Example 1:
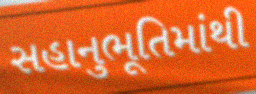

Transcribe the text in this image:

સહાનુભૂતિમાંથી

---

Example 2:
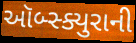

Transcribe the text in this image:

ઑબ્સ્ક્યુરાની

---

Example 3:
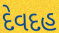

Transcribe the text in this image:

દેવદહ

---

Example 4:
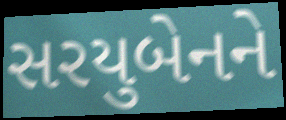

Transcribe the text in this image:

સરયુબેનને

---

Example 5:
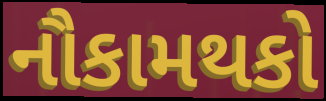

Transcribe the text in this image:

નૌકામથકો